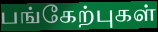
பங்கேற்புகள்